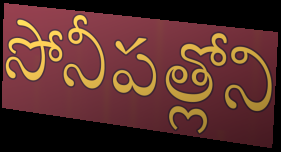
సోనీపత్లోని